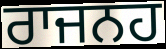
ਰਾਜਨਹ